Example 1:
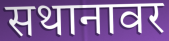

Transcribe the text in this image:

सथानावर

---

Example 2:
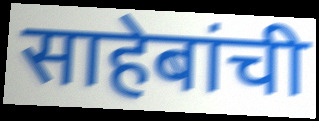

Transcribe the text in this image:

साहेबांची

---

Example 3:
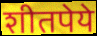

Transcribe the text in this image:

शीतपेये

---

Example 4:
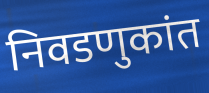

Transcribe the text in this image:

निवडणुकांत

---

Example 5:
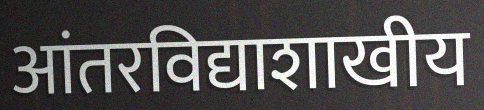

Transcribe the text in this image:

आंतरविद्याशाखीय